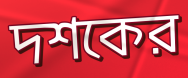
দশকের